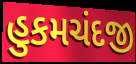
હુકમચંદજી